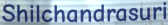
Shilchandrasuri